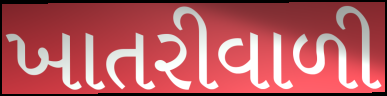
ખાતરીવાળી